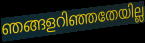
ഞങ്ങളറിഞ്ഞതേയില്ല